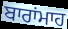
ਬਾਰਾਂਮਾਹ